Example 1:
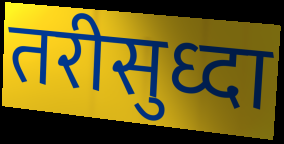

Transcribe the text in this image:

तरीसुध्दा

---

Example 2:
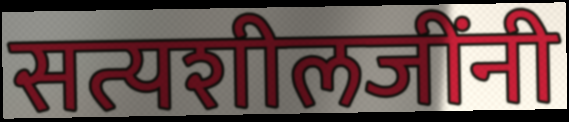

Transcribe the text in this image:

सत्यशीलजींनी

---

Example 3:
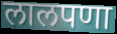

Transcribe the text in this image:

लालपणा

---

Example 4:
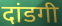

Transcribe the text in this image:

दांडगी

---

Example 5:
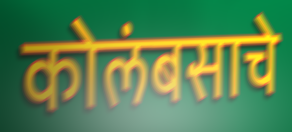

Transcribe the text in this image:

कोलंबसाचे